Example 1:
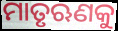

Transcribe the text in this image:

ମାତୃଋଣକୁ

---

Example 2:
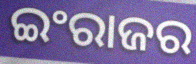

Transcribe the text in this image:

ଇଂରାଜର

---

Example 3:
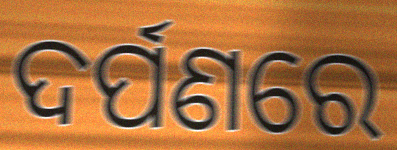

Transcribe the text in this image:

ଦର୍ପଣରେ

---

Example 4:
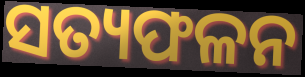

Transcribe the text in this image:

ସତ୍ୟଫଳନ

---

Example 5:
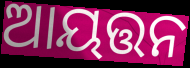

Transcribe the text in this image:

ଆୟତ୍ତନ